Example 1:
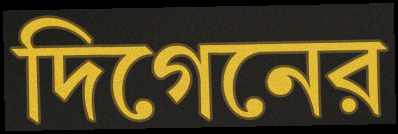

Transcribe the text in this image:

দিগেনের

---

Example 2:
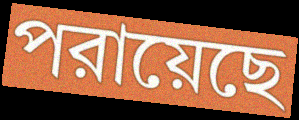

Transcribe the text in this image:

পরায়েছে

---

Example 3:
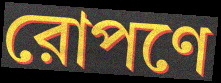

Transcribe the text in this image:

রোপণে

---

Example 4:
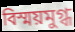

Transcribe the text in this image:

বিস্ময়মুগ্ধ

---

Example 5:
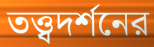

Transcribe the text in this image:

তত্ত্বদর্শনের